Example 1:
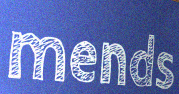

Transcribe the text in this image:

mends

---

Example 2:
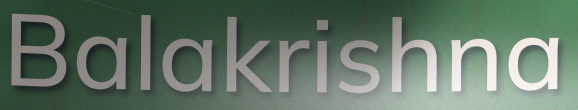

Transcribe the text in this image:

Balakrishna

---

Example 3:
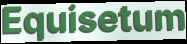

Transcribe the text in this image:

Equisetum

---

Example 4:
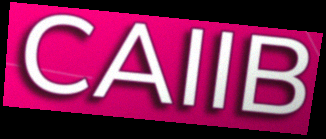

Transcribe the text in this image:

CAIIB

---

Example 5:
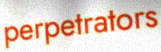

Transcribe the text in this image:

perpetrators